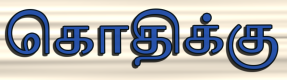
கொதிக்கு